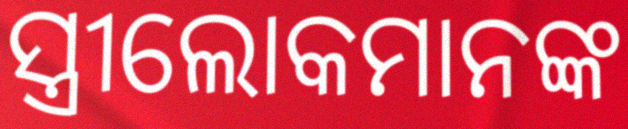
ସ୍ତ୍ରୀଲୋକମାନଙ୍କ